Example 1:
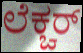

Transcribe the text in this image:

ಲೆಕ್ಚರ್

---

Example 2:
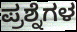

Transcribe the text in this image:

ಪ್ರಶ್ನೆಗಳ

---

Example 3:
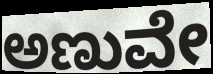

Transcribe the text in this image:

ಅಣುವೇ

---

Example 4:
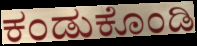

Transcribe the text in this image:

ಕಂಡುಕೊಂಡಿ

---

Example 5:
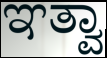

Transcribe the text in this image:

ಞತ್ವಾ